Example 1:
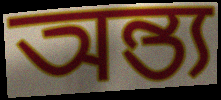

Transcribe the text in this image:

অন্ত্য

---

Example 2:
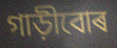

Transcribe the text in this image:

গাড়ীবোৰ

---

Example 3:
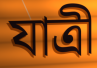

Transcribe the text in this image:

যাত্ৰী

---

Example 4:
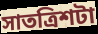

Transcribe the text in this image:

সাতত্ৰিশটা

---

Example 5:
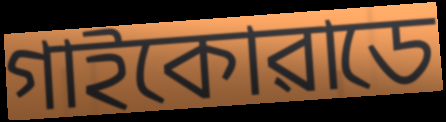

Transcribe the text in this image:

গাইকোৱাডে